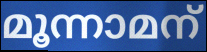
മൂന്നാമന്